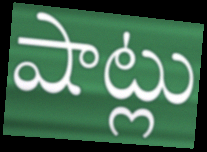
షాట్లు